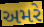
અમરે